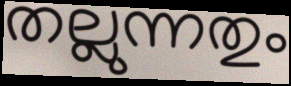
തല്ലുന്നതും